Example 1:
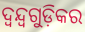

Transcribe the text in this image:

ଦ୍ୱନ୍ଦ୍ୱଗୁଡ଼ିକର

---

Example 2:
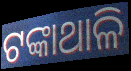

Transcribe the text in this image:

ଟଙ୍କାଥାଳି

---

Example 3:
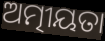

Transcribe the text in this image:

ଅତ୍ମୀୟତା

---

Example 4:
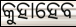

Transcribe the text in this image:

କୁହାହେବ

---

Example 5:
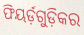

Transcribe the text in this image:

ଫିୟର୍ଡ଼ଗୁଡ଼ିକର